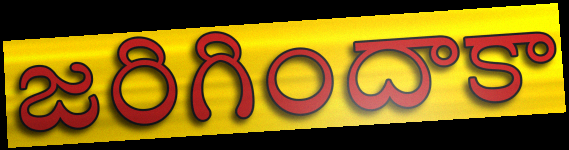
జరిగిందాకా